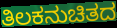
ತಿಲಕನುಚಿತದ